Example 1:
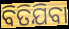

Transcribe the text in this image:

ବିତିଯିବା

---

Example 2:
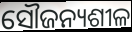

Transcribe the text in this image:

ସୌଜନ୍ୟଶୀଳ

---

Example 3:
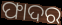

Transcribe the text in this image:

ଫାଦର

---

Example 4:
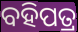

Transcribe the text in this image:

ବହିପତ୍ର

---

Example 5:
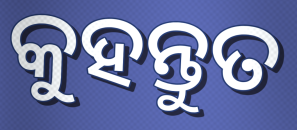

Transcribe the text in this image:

କୁହନ୍ତୁତ